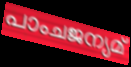
പാംചജന്യമ്